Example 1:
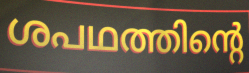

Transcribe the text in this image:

ശപഥത്തിന്റെ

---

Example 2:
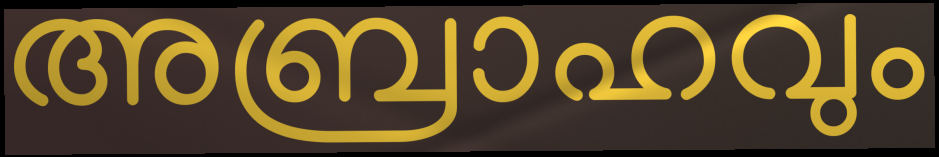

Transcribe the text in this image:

അബ്രാഹവും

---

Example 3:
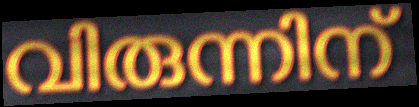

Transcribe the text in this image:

വിരുന്നിന്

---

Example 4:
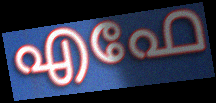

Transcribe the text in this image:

എഫേ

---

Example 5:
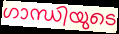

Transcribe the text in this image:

ഗാന്ധിയുടെ